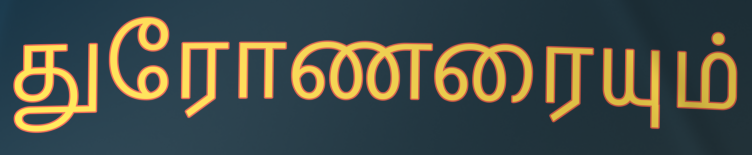
துரோணரையும்